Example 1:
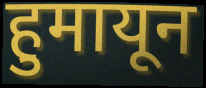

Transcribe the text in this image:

हुमायून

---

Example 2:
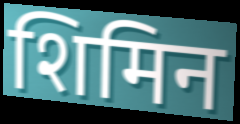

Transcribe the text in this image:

शिमिन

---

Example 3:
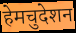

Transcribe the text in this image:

हेमचुदेशन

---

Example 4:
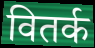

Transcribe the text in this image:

वितर्क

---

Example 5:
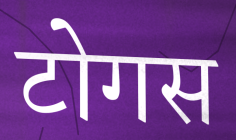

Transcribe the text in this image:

टोगस